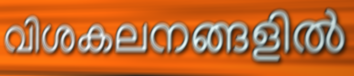
വിശകലനങ്ങളിൽ